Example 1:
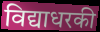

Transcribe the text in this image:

विद्याधरकी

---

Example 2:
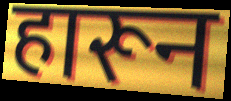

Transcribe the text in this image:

हारून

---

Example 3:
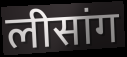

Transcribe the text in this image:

लीसांग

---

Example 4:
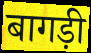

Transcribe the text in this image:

बागड़ी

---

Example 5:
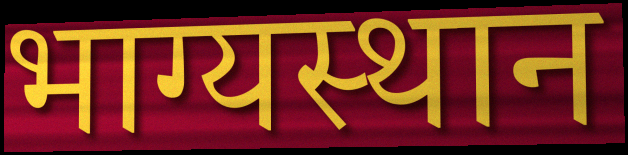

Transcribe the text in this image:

भाग्यस्थान